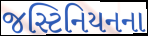
જસ્ટિનિયનના